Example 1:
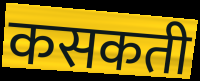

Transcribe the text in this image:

कसकती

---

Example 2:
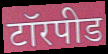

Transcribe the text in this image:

टॉरपीड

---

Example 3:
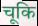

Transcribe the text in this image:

चूकि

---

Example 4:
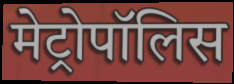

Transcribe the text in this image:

मेट्रोपॉलिस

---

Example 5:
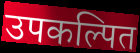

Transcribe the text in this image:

उपकल्पित